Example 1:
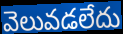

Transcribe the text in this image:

వెలువడలేదు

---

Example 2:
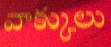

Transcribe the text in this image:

వాక్కులు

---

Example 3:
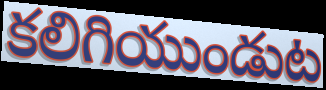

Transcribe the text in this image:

కలిగియుండుట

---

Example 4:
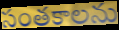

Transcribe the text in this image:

సంతకాలను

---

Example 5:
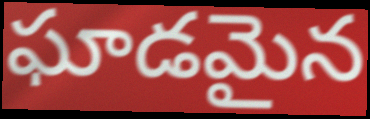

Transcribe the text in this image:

ఘాడమైన